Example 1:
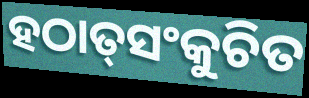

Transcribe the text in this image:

ହଠାତ୍‌ସଂକୁଚିତ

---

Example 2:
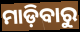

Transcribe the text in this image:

ମାଡ଼ିବାରୁ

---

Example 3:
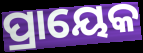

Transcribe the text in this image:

ପ୍ରାୟେକ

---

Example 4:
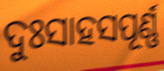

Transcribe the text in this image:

ଦୁଃସାହସପୂର୍ଣ୍ଣ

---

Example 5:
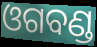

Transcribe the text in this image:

ଓଗବଣ୍ଡ